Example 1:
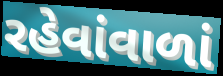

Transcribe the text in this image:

રહેવાંવાળાં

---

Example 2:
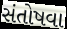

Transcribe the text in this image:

સંતોષવા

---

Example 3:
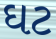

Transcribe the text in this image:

ઘટ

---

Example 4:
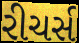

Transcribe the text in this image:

રીચર્સ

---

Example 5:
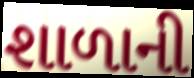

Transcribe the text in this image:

શાળાની